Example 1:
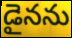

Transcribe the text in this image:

డైనను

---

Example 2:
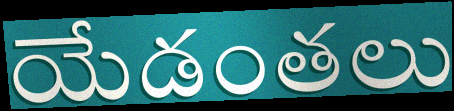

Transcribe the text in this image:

యేడంతలు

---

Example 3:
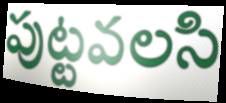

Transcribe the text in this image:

పుట్టవలసి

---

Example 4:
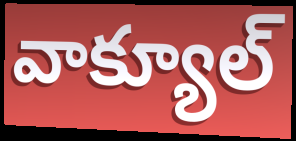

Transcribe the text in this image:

వాక్యూల్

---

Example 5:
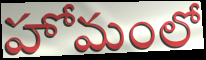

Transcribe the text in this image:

హోమంలో